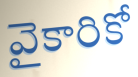
వైకారికో